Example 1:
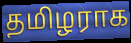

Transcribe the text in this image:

தமிழராக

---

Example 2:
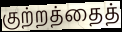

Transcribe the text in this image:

குற்றத்தைத்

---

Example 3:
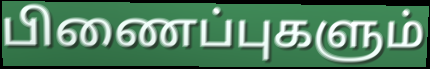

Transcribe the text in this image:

பிணைப்புகளும்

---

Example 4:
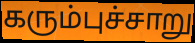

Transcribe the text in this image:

கரும்புச்சாறு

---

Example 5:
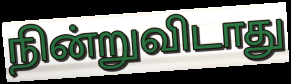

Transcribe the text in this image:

நின்றுவிடாது